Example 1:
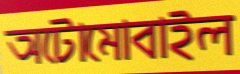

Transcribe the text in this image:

অটোমোবাইল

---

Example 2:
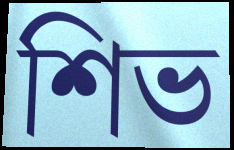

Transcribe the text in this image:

শিভ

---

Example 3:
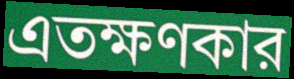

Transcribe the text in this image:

এতক্ষণকার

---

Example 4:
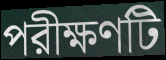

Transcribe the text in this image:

পরীক্ষণটি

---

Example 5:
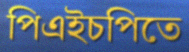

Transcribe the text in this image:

পিএইচপিতে